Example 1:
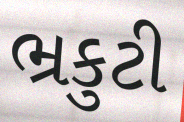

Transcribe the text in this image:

ભ્રકુટી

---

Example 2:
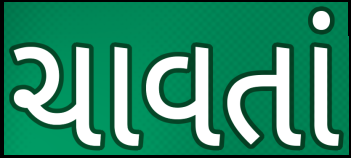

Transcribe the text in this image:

ચાવતાં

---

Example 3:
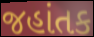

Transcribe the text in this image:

જહાંતક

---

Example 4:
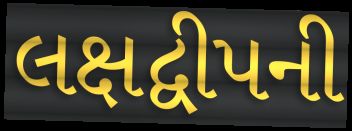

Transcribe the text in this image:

લક્ષદ્વીપની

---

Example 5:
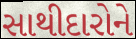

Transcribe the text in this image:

સાથીદારોને